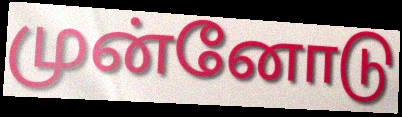
முன்னோடு